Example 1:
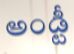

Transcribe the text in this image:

అండ్టీ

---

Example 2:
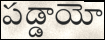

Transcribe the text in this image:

పడ్డాయో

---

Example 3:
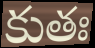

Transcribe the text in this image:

కుతః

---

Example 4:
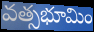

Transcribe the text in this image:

వత్సభూమిం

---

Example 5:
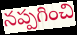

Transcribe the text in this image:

నప్పగించి